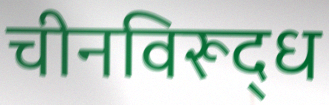
चीनविरूद्ध